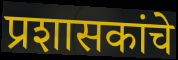
प्रशासकांचे